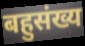
बहुसंख्य